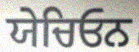
ਯੇਚਿਓਨ